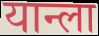
यान्ला